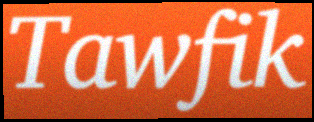
Tawfik